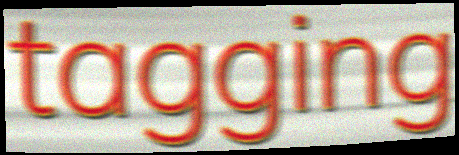
tagging